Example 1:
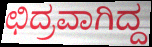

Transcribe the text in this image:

ಛಿದ್ರವಾಗಿದ್ದ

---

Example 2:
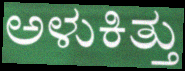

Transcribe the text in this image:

ಅಳುಕಿತ್ತು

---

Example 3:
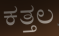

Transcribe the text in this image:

ಕತ್ತಲ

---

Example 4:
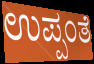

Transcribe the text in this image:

ಉಪ್ಪಂತೆ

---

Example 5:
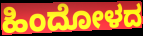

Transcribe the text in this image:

ಹಿಂದೋಳದ